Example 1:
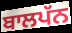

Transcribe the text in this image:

ਬਾਲਪੱਨ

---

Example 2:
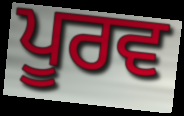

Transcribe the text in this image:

ਪੂਰਵ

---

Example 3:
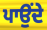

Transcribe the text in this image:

ਪਾਉਂਦੇ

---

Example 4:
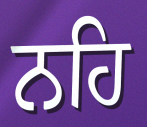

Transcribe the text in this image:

ਨਹਿ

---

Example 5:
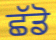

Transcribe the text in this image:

ਛੱਡੋ